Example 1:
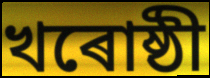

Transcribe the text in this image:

খৰোষ্ঠী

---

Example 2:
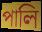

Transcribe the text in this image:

পালি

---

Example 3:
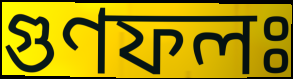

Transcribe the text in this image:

গুণফলঃ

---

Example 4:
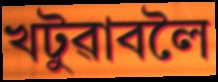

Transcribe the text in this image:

খটুৱাবলৈ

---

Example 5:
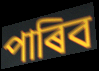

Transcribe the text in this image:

পাৰিব